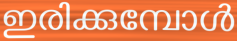
ഇരിക്കുമ്പോൾ